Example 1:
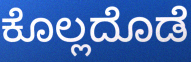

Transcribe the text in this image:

ಕೊಲ್ಲದೊಡೆ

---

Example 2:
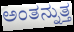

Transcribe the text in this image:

ಅಂತನ್ನುತ್ತ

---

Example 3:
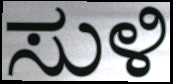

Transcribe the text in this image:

ಸುಳಿ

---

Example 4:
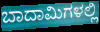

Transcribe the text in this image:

ಬಾದಾಮಿಗಳಲ್ಲಿ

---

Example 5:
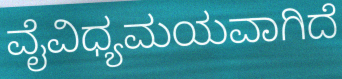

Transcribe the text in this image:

ವೈವಿಧ್ಯಮಯವಾಗಿದೆ